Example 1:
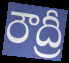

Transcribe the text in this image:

రౌద్రీ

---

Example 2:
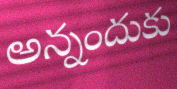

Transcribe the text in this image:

అన్నందుకు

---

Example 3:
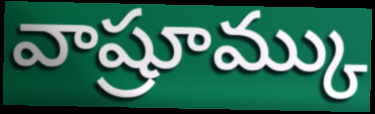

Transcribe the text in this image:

వాష్రూమ్కు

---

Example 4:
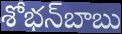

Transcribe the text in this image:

శోభన్‌బాబు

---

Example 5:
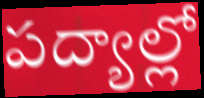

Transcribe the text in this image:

పద్యాల్లో